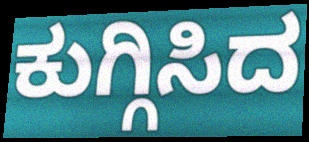
ಕುಗ್ಗಿಸಿದ